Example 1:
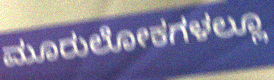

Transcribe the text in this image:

ಮೂರುಲೋಕಗಳಲ್ಲೂ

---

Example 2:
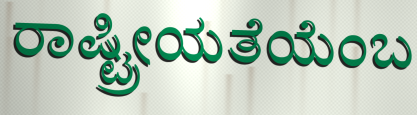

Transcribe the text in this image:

ರಾಷ್ಟ್ರೀಯತೆಯೆಂಬ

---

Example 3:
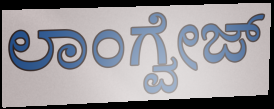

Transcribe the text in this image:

ಲಾಂಗ್ವೇಜ್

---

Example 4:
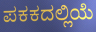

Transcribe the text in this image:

ಪಕಕದಲ್ಲಿಯೆ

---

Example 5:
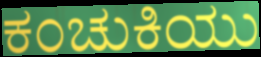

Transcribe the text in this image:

ಕಂಚುಕಿಯು